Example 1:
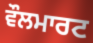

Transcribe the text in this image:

ਵੌਲਮਾਰਟ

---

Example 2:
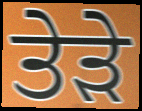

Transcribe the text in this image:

ਤੇੜੇ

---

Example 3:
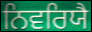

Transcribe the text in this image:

ਨਿਵਰਿਯੈ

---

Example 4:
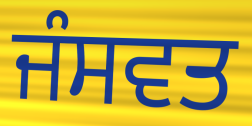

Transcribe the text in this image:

ਜੰਸਵਤ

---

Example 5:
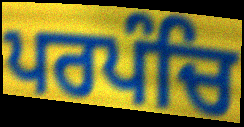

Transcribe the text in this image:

ਪਰਪੰਚਿ